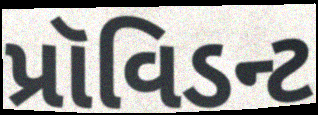
પ્રૉવિડન્ટ